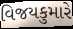
વિજયકુમારે